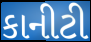
કાનીટી